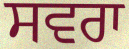
ਸਵਰਾ